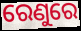
ରେଣୁରେ